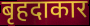
बृहदाकार